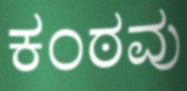
ಕಂಠವು